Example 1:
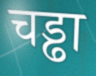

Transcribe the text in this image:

चड्ढा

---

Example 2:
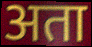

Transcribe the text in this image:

अता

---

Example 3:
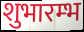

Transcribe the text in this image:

शुभारम्‍भ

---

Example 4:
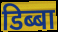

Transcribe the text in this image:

डिब्बा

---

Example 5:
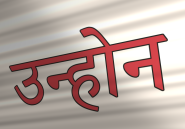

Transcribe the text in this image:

उन्होन